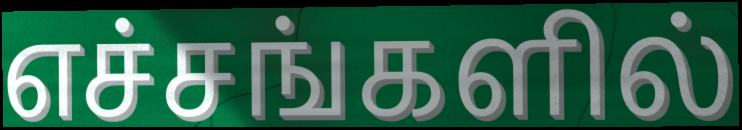
எச்சங்களில்